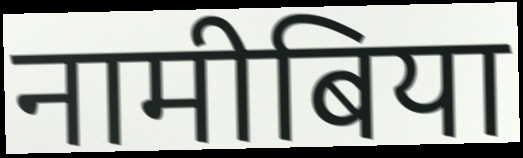
नामीबिया